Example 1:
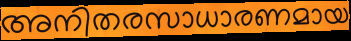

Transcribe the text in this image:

അനിതരസാധാരണമായ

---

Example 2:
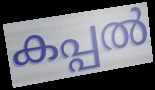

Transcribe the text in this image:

കപ്പൽ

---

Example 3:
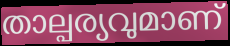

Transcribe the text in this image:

താല്പര്യവുമാണ്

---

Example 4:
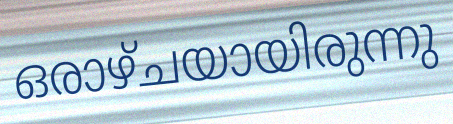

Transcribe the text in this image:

ഒരാഴ്ചയായിരുന്നു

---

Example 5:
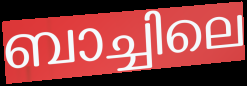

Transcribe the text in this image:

ബാച്ചിലെ